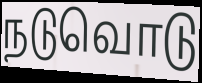
நடுவொடு